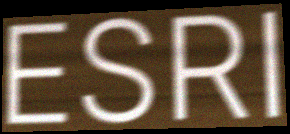
ESRI